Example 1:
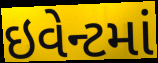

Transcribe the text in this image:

ઇવેન્ટમાં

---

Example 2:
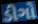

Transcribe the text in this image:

ડીગો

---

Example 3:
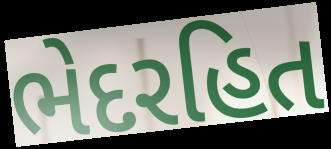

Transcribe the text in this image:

ભેદરહિત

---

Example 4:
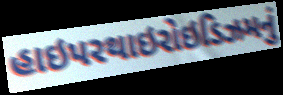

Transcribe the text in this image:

હાઇપરથાઇરોઇડિઝમનું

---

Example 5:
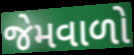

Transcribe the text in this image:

જેમવાળો